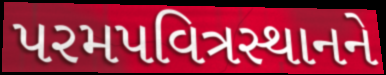
પરમપવિત્રસ્થાનને